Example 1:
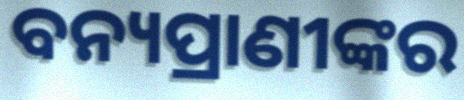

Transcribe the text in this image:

ବନ୍ୟପ୍ରାଣୀଙ୍କର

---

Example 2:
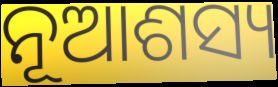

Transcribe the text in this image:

ନୂଆଶସ୍ୟ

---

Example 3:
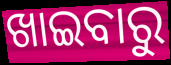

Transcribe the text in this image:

ଖାଇବାରୁ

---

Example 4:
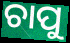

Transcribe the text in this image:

ଚାପୁ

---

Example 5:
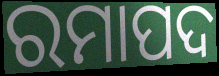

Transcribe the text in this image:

ରମାପଦ